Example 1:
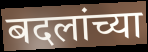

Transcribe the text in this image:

बदलांच्या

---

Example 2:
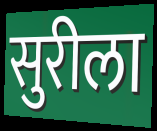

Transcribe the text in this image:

सुरीला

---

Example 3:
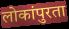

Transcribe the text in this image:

लोकांपुरता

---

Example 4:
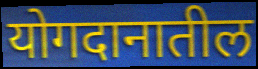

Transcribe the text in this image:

योगदानातील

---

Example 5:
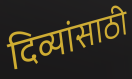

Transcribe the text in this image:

दिव्यांसाठी